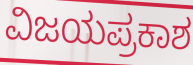
ವಿಜಯಪ್ರಕಾಶ